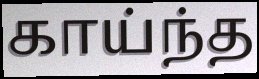
காய்ந்த